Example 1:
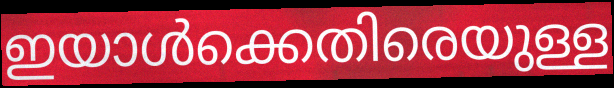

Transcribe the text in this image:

ഇയാൾക്കെതിരെയുള്ള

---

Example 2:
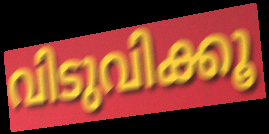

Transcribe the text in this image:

വിടുവിക്കൂ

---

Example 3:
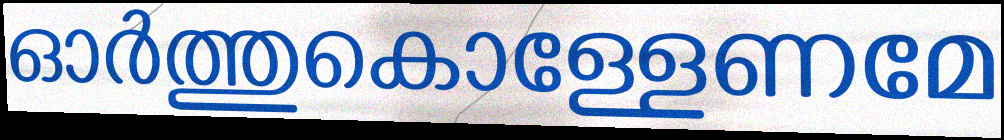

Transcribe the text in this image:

ഓർത്തുകൊള്ളേണമേ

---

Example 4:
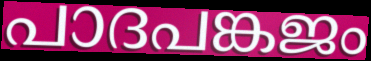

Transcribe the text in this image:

പാദപങ്കജം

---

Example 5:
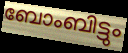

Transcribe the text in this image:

ബോംബിട്ടും